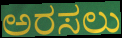
ಅರಸಲು